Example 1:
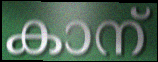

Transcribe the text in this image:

കാന്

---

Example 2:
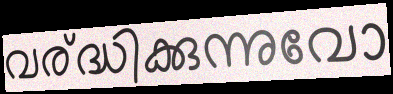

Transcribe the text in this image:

വര്ദ്ധിക്കുന്നുവോ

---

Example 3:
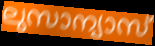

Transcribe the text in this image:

ലുസാന്യാസ്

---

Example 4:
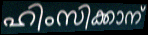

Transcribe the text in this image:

ഹിംസിക്കാന്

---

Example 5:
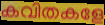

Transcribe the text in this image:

കവിതകളേ